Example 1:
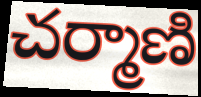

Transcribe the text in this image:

చర్మాణి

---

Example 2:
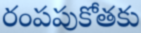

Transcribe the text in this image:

రంపపుకోతకు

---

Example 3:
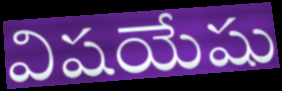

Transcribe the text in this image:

విషయేషు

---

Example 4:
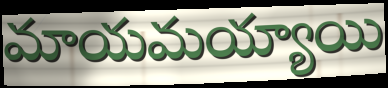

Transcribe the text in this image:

మాయమయ్యాయి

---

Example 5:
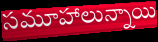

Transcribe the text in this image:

సమూహాలున్నాయి